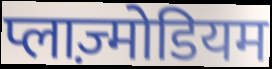
प्लाज़्मोडियम